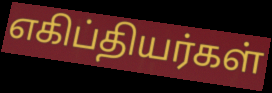
எகிப்தியர்கள்